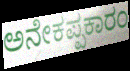
ಅನೇಕಪ್ಪಕಾರಂ